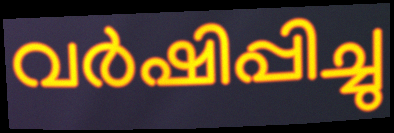
വർഷിപ്പിച്ചു